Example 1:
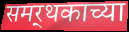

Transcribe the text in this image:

समर्थकाच्या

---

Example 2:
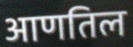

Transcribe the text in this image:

आणतिल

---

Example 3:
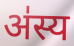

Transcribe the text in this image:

अ॑स्य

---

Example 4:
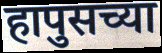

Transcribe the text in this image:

हापुसच्या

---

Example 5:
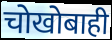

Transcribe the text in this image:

चोखोबाही